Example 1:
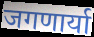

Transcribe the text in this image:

जगणार्या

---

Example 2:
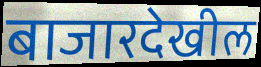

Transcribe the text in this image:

बाजारदेखील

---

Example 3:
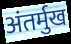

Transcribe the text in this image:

अंतर्मुख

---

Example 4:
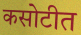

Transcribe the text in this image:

कसोटीत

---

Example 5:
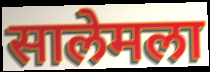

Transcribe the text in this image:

सालेमला